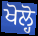
ਖੋਲ੍ਹੋ